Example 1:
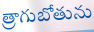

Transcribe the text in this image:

త్రాగుబోతును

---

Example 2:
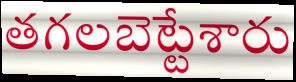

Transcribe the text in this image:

తగలబెట్టేశారు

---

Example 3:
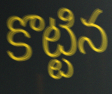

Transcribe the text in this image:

కొట్టిన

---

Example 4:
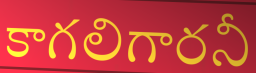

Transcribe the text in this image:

కాగలిగారనీ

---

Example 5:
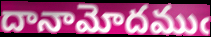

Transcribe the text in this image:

దానామోదముఁ